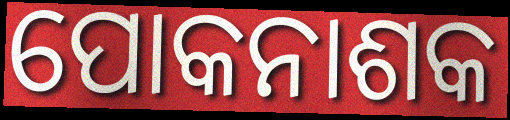
ପୋକନାଶକ